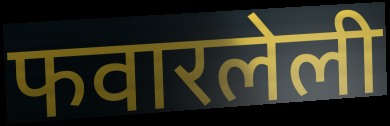
फवारलेली